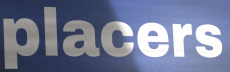
placers